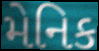
મેનિક